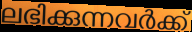
ലഭിക്കുന്നവർക്ക്